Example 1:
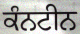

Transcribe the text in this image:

ਕੰਨਟੀਨ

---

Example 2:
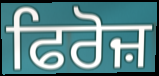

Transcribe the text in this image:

ਫਿਰੋਜ਼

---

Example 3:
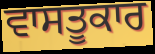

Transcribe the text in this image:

ਵਾਸਤੂਕਾਰ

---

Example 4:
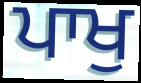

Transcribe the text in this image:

ਪਾਖੁ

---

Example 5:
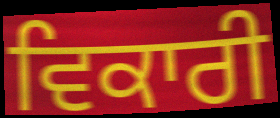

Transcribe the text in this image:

ਵਿਕਾਰੀ